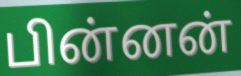
பின்னன்